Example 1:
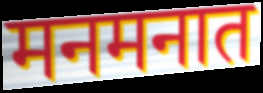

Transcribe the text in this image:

मनमनात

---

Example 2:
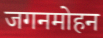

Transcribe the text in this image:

जगनमोहन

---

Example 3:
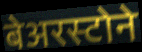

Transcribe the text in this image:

बेअरस्टोने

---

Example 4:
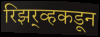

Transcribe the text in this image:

रिझर्व्हकडून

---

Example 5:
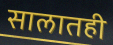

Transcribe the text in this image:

सालातही